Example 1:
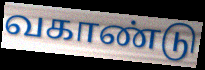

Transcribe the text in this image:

வகாண்டு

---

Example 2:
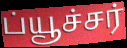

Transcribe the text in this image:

ப்யூச்சர்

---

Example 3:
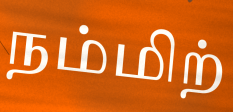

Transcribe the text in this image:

நம்மிற்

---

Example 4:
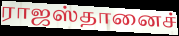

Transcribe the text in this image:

ராஜஸ்தானைச்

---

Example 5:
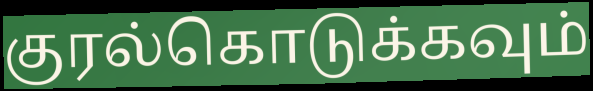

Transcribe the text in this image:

குரல்கொடுக்கவும்